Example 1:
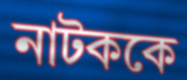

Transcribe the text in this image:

নাটককে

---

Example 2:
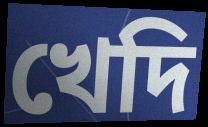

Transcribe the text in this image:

খেদি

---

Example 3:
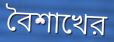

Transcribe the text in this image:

বৈশাখের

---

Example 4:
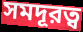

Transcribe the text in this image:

সমদূরত্ব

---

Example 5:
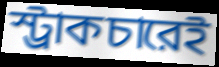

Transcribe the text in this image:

স্ট্রাকচারেই